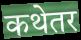
कथेतर